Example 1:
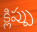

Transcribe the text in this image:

క్లిప్పు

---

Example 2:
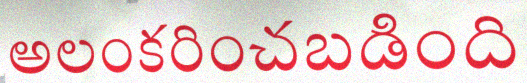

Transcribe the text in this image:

అలంకరించబడింది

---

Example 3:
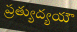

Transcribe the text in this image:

ప్రత్యుద్యయౌ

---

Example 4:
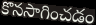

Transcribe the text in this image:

కొనసాగించడం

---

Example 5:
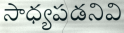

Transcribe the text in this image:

సాధ్యపడనివి